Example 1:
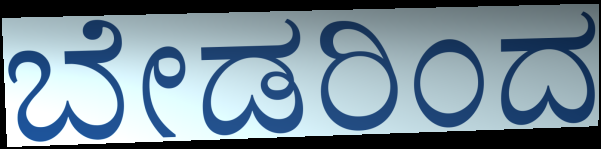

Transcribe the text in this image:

ಬೇಡರಿಂದ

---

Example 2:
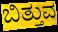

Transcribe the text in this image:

ಬಿತ್ತುವ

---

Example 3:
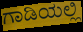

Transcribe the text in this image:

ಗಾಡಿಯಲ್ಲಿ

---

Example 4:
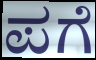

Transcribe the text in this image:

ಪಗೆ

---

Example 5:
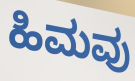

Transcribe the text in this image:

ಹಿಮವು